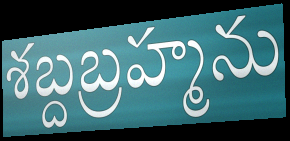
శబ్దబ్రహ్మను